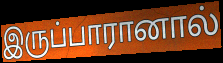
இருப்பாரானால்